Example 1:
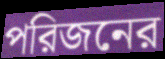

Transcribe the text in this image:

পরিজনের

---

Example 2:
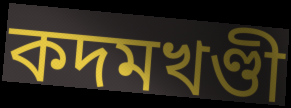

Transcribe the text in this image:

কদমখণ্ডী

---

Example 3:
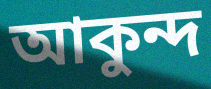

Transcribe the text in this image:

আকুন্দ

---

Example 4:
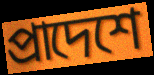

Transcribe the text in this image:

প্রাদেশে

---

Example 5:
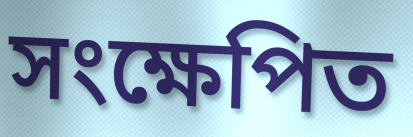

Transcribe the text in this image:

সংক্ষেপিত